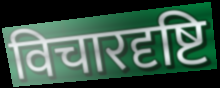
विचारदृष्टि